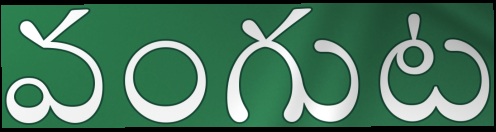
వంగుట